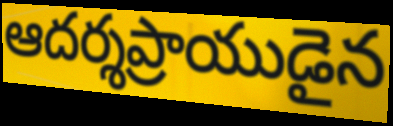
ఆదర్శప్రాయుడైన